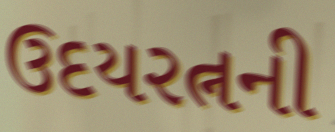
ઉદયરત્નની